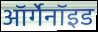
ऑर्गेनॉइड